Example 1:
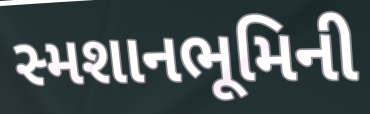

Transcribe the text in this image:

સ્મશાનભૂમિની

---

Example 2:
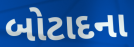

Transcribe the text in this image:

બોટાદના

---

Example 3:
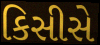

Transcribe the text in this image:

કિસીસે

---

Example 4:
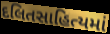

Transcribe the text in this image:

દલિતસાહિત્યમાં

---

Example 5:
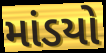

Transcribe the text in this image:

માંડયો